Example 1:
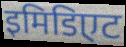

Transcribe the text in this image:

इमिडिएट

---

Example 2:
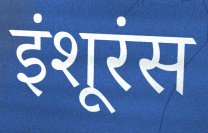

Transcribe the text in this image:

इंशूरंस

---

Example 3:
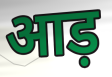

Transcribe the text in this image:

आड़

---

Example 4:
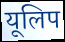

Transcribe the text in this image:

यूलिप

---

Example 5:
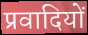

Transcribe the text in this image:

प्रवादियों